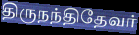
திருநந்திதேவர்